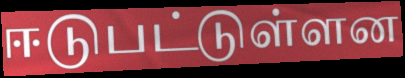
ஈடுபட்டுள்ளன